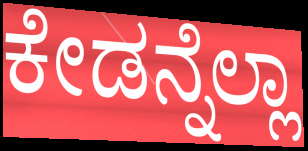
ಕೇಡನ್ನೆಲ್ಲಾ